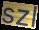
szl